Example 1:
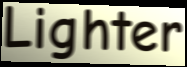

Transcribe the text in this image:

Lighter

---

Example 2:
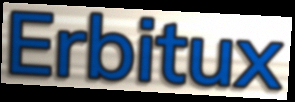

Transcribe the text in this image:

Erbitux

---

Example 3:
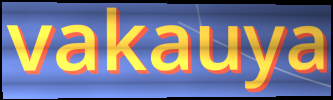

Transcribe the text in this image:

vakauya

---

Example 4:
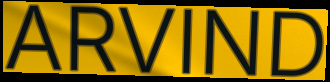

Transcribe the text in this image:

ARVIND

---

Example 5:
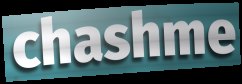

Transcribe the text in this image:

chashme